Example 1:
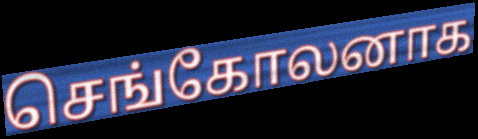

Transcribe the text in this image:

செங்கோலனாக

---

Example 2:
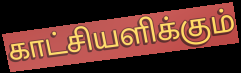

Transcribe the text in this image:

காட்சியளிக்கும்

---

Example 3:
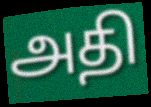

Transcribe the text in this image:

அதி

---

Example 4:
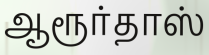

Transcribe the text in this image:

ஆரூர்தாஸ்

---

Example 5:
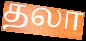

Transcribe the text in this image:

தலா